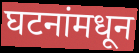
घटनांमधून